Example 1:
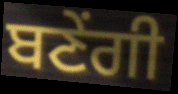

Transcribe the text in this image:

ਬਣੇਂਗੀ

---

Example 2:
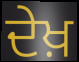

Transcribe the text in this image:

ਦੇਖ਼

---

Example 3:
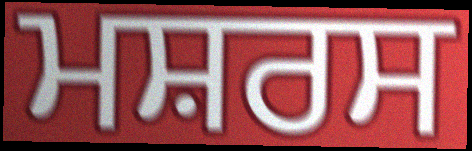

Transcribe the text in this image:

ਮਸ਼ਰਸ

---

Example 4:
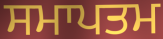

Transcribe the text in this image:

ਸਮਾਪਤਮ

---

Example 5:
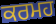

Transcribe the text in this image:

ਕਰਮਹ